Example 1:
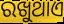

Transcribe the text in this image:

ରଖୁଥାଏ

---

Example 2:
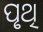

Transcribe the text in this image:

ପୃଥି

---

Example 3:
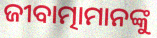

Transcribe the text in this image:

ଜୀବାତ୍ମାମାନଙ୍କୁ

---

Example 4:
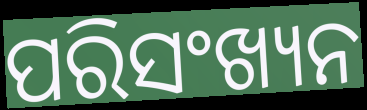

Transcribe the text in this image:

ପରିସଂଖ୍ୟନ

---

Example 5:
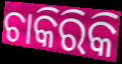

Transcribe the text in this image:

ଚାକିରିକି